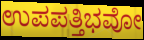
ಉಪಪತ್ತಿಭವೋ